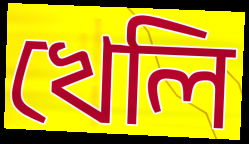
খেলি